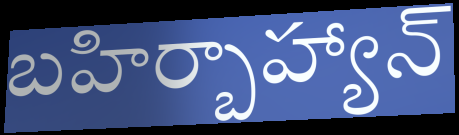
బహిర్బాహ్యాన్